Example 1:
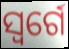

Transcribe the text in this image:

ସ୍ୱର୍ଗେ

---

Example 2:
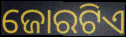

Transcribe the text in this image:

ଜୋରଟିଏ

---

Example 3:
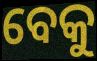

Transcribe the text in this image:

ବେକୁ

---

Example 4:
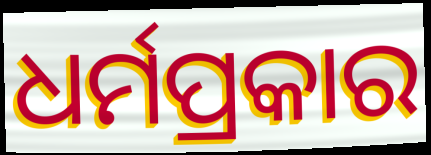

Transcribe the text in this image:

ଧର୍ମପ୍ରକାର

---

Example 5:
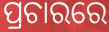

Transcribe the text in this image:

ପ୍ରଚାରରେ